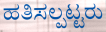
ಹತಿಸಲ್ಪಟ್ಟರು